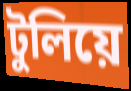
টুলিয়ে